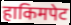
हाकिमपेट